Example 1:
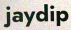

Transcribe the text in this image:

jaydip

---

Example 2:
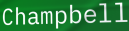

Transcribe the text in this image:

Champbell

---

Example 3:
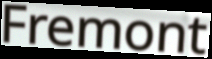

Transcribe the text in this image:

Fremont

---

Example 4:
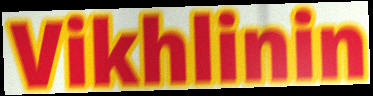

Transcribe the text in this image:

Vikhlinin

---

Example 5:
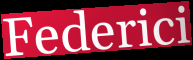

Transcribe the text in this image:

Federici